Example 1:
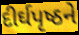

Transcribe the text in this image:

દીર્ઘપૃષ્ઠને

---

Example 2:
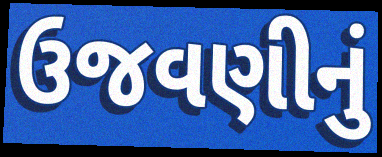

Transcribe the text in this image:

ઉજવણીનું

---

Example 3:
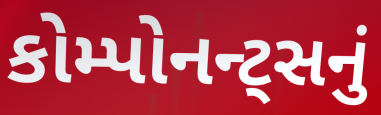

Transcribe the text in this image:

કોમ્પોનન્ટ્સનું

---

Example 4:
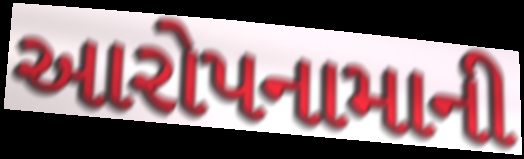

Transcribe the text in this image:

આરોપનામાની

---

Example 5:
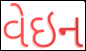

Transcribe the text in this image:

વેઇન